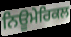
ਨਿਊਮੇਰਿਕਲ